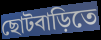
ছোটবাড়িতে